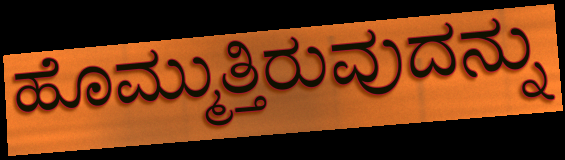
ಹೊಮ್ಮುತ್ತಿರುವುದನ್ನು